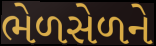
ભેળસેળને